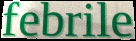
febrile